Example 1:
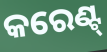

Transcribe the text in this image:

କରେଣ୍ଟ୍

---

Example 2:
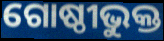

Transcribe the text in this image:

ଗୋଷ୍ଠୀଭୁକ୍ତ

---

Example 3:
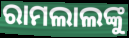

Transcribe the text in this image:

ରାମଲାଲଙ୍କୁ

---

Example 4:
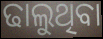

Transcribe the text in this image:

ଢାଲୁଥିବା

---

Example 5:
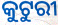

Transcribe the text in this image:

କୁଟୁରୀ